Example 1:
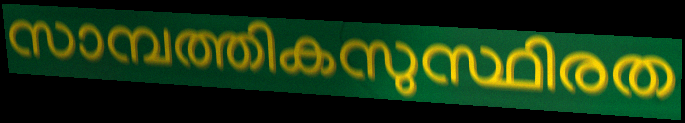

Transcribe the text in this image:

സാമ്പത്തികസുസ്ഥിരത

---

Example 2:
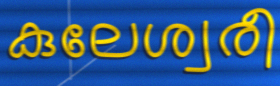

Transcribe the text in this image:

കുലേശ്വരീ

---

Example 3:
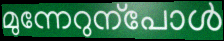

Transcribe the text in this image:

മുന്നേറുന്പോൾ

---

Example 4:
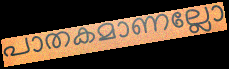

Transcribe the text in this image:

പാതകമാണല്ലോ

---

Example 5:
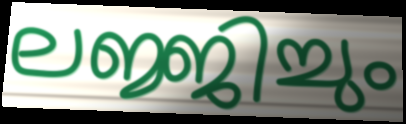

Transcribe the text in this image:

ലജ്ജിച്ചും